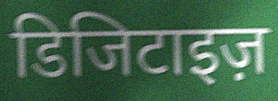
डिजिटाइज़